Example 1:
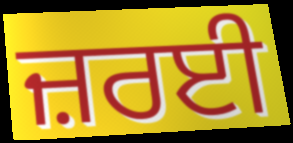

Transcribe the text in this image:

ਜ਼ਰਈ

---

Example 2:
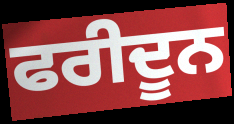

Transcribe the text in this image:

ਫਰੀਦੂਨ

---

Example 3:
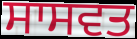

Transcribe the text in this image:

ਸਾਸਵਤ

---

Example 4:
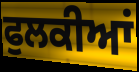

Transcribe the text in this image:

ਫੁਲਕੀਆਂ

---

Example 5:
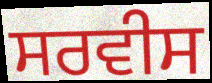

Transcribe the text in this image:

ਸਰਵੀਸ